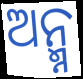
ଅନ୍ମ୍ନ